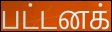
பட்டனக்